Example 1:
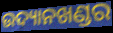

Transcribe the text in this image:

ଉଦ୍ୟାନଖଣ୍ଡର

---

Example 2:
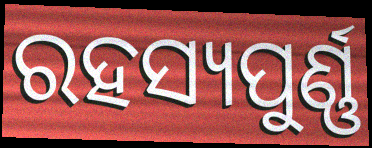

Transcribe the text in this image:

ରହସ୍ୟପୁର୍ଣ୍ଣ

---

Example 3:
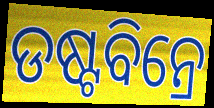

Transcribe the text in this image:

ଡଷ୍ଟବିନ୍ରେ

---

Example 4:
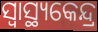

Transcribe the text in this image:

ସ୍ୱାସ୍ଥ୍ୟକେନ୍ଦ୍ର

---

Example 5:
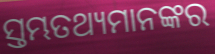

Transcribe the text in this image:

ସ୍ତମ୍ଭତଥ୍ୟମାନଙ୍କର